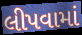
લીપવામાં